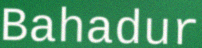
Bahadur